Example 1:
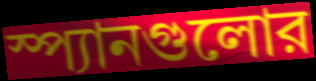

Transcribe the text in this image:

স্প্যানগুলোর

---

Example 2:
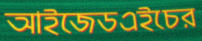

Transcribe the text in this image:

আইজেডএইচের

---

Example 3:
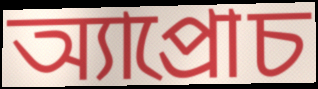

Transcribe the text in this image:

অ্যাপ্রোচ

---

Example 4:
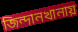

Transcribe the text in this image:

জিন্দানখানায়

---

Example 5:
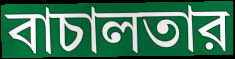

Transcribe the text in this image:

বাচালতার